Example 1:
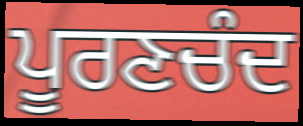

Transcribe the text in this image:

ਪੂਰਣਚੰਦ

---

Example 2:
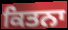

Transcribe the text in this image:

ਕਿਤਨਾ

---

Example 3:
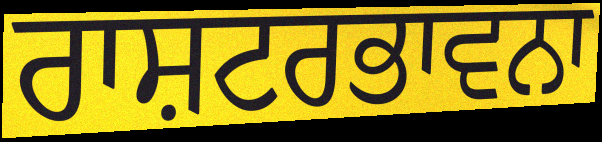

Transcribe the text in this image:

ਰਾਸ਼ਟਰਭਾਵਨਾ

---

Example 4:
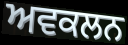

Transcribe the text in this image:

ਅਵਕਲਨ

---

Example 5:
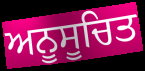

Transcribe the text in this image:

ਅਨੂਸੂਚਿਤ